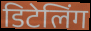
डिटेलिंग